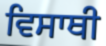
ਵਿਸਾਥੀ